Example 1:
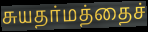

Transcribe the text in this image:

சுயதர்மத்தைச்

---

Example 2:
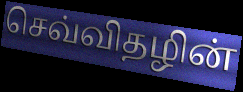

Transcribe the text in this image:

செவ்விதழின்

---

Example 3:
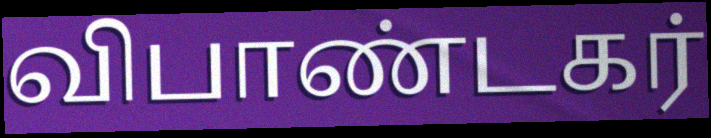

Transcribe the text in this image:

விபாண்டகர்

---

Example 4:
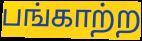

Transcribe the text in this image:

பங்காற்ற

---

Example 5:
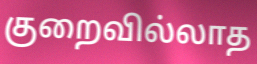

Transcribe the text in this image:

குறைவில்லாத